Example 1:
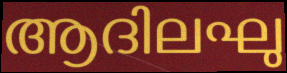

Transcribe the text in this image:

ആദിലഘു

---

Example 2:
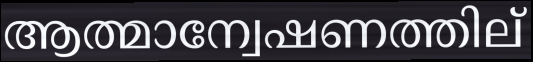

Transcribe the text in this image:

ആത്മാന്വേഷണത്തില്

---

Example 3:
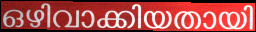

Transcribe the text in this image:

ഒഴിവാക്കിയതായി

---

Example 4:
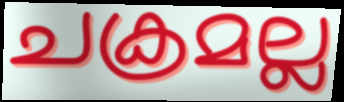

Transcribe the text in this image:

ചക്രമല്ല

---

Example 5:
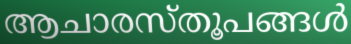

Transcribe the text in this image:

ആചാരസ്തൂപങ്ങൾ